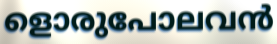
ളൊരുപോലവൻ